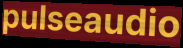
pulseaudio